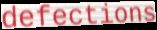
defections